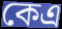
কেএ